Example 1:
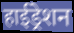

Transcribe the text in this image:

हाईड्रेशन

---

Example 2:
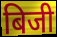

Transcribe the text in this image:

बिजी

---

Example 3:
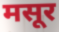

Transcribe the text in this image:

मसूर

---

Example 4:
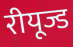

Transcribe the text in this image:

रीयूज्ड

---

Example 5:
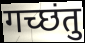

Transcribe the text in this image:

गच्छंतु